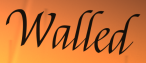
Walled